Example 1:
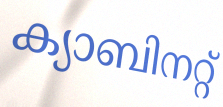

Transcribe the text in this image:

ക്യാബിനറ്റ്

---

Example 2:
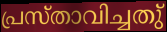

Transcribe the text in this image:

പ്രസ്താവിച്ചതു്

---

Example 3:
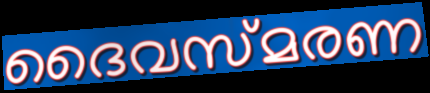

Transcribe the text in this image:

ദൈവസ്മരണ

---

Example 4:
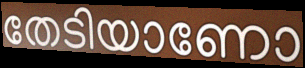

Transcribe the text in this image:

തേടിയാണോ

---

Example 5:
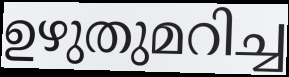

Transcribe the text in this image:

ഉഴുതുമറിച്ച